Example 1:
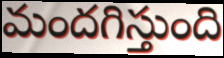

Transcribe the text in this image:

మందగిస్తుంది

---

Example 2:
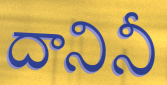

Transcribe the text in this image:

దానినీ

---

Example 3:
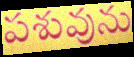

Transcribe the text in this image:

పశువును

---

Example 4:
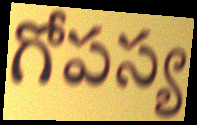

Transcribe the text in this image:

గోపస్య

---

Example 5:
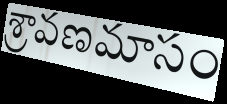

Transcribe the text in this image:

శ్రావణమాసం